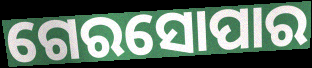
ଗେରସୋପାର